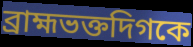
ব্রাহ্মভক্তদিগকে